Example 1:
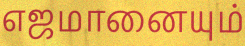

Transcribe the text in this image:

எஜமானையும்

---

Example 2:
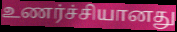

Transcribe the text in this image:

உணர்ச்சியானது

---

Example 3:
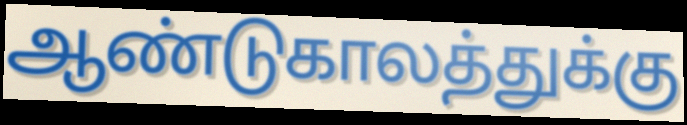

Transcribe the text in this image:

ஆண்டுகாலத்துக்கு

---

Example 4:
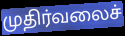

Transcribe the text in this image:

முதிர்வலைச்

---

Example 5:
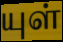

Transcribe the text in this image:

யுள்